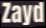
Zayd